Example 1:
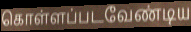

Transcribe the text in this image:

கொள்ளப்படவேண்டிய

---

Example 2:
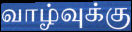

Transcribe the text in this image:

வாழ்வுக்கு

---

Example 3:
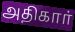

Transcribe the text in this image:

அதிகார்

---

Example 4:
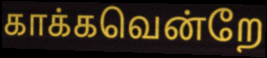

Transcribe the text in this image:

காக்கவென்றே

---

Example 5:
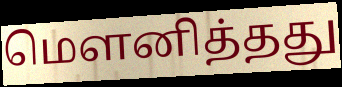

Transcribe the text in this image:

மௌனித்தது